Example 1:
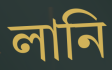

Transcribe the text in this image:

লানি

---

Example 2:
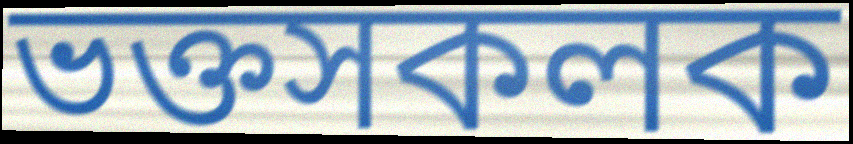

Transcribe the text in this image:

ভক্তসকলক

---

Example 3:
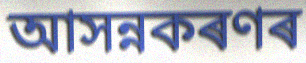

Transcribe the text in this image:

আসন্নকৰণৰ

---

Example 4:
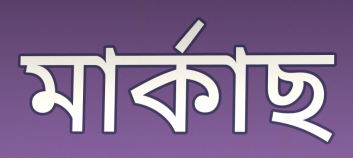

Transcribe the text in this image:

মাৰ্কাছ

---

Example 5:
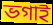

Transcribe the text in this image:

ভগাই